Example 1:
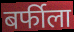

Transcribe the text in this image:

बर्फीला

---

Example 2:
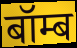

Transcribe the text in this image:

बॉम्ब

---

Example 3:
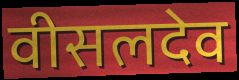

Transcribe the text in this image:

वीसलदेव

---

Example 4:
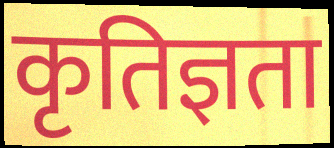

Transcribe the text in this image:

कृतिज्ञता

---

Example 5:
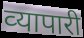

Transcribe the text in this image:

व्‍यापारी